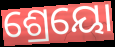
ଶ୍ରେୟୋ